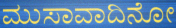
ಮುಸಾವಾದಿನೋ